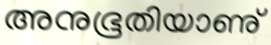
അനുഭൂതിയാണു്